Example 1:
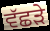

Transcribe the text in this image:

ਵੱਛੜੇ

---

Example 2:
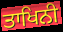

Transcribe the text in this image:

ਤਾਖਿਨੀ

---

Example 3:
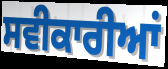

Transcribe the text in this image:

ਸਵੀਕਾਰੀਆਂ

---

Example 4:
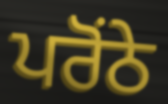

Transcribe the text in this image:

ਪਰੋਂਠੇ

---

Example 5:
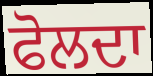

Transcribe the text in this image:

ਫੋਲਦਾ